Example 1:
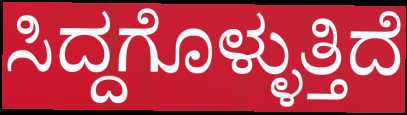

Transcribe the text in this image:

ಸಿದ್ದಗೊಳ್ಳುತ್ತಿದೆ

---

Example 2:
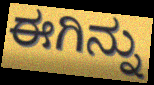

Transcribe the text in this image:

ಈಗಿನ್ನು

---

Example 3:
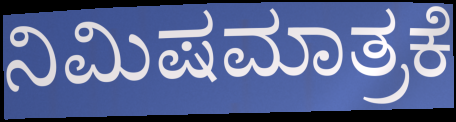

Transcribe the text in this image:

ನಿಮಿಷಮಾತ್ರಕೆ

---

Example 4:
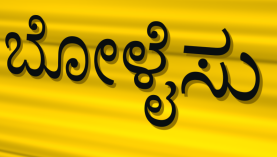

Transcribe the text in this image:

ಬೋಳೈಸು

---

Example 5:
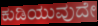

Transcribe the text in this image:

ಕುಡಿಯುವುದೇ